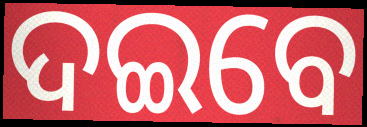
ଦଇବେ